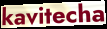
kavitecha